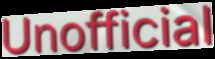
Unofficial